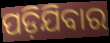
ପଡ଼ିଯିବାର